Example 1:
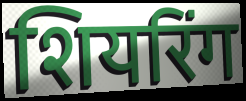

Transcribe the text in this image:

शियरिंग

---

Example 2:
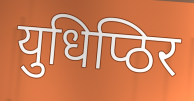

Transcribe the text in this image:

युधिप्ठिर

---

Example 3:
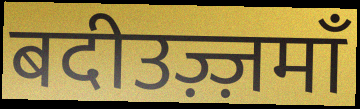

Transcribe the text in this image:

बदीउज़्ज़माँ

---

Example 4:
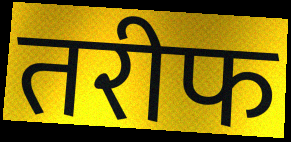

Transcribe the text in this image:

तरीफ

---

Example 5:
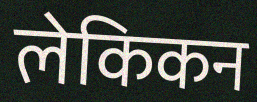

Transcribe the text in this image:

लेकिकन